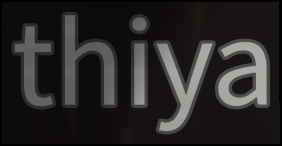
thiya